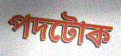
পদটোক